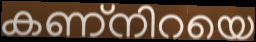
കണ്നിറയെ